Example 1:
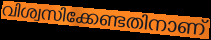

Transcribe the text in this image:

വിശ്വസിക്കേണ്ടതിനാണ്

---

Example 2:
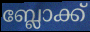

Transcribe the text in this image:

ബ്ലോക്ക്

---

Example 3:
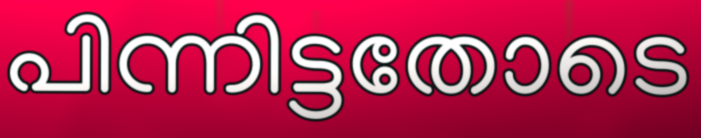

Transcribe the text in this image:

പിന്നിട്ടതോടെ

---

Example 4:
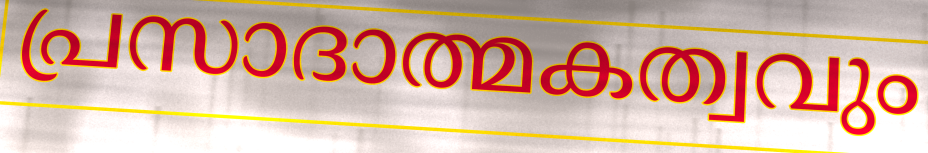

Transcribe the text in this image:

പ്രസാദാത്മകത്വവും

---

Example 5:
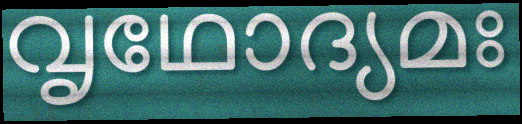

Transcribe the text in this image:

വൃഥോദ്യമഃ